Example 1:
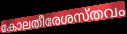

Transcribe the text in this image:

കോലതീരേശസ്തവം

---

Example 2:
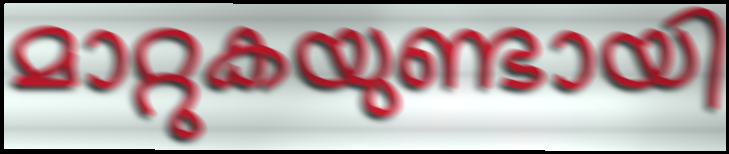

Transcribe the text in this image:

മാറ്റുകയുണ്ടായി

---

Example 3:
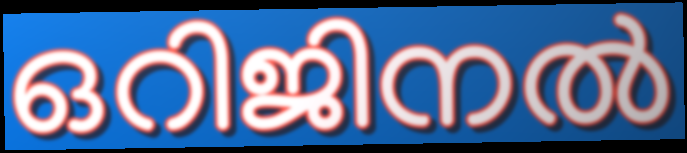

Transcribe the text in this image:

ഒറിജിനൽ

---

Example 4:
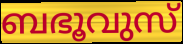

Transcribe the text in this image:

ബഭൂവുസ്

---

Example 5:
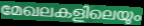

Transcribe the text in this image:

മേഖലകളിലെയും